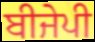
ਬੀਜੇਪੀ